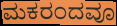
ಮಕರಂದವೂ